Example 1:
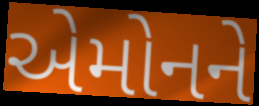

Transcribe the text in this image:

એમોનને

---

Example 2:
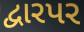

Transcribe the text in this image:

દ્વારપર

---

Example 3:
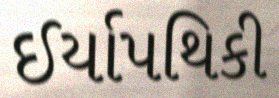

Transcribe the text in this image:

ઈર્યાપથિકી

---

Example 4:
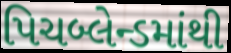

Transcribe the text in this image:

પિચબ્લેન્ડમાંથી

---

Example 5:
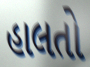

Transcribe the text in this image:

હાલતો